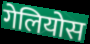
गेलियोस